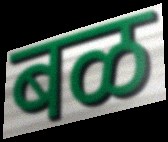
बळ